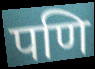
पणि